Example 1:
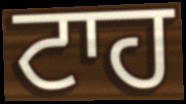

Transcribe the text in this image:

ਟਾਹ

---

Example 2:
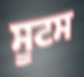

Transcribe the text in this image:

ਸੂਟਸ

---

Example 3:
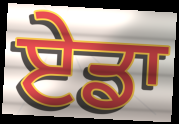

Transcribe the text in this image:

ਏਡਾ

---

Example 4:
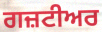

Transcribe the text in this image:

ਗਜ਼ਟੀਅਰ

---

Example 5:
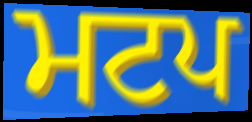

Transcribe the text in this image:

ਮਟਪ